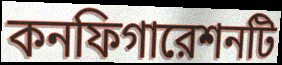
কনফিগারেশনটি